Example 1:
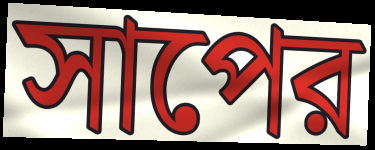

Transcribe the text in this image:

সাপের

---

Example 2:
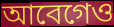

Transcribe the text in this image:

আবেগেও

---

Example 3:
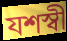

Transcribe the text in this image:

যশস্বী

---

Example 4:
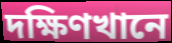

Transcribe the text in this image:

দক্ষিণখানে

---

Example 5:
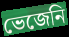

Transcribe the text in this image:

ভেজেনি